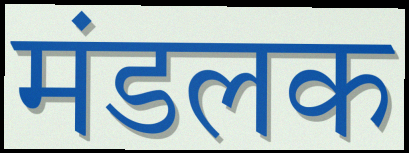
मंडलक